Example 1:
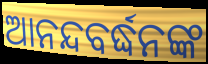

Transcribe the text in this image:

ଆନନ୍ଦବର୍ଦ୍ଧନଙ୍କ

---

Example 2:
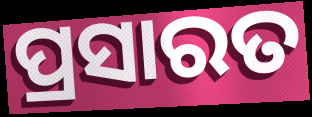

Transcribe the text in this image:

ପ୍ରସାରତ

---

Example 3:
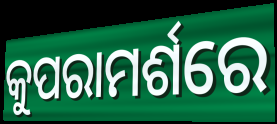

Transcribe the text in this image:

କୁପରାମର୍ଶରେ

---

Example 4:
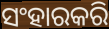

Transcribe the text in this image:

ସଂହାରକରି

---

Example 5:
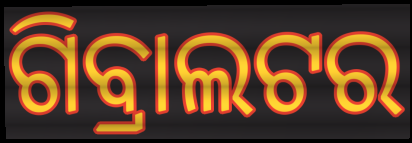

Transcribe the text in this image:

ଗିବ୍ରାଲଟର